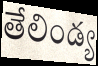
తేలిండ్య